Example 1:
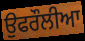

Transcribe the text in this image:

ਉਫਰੌਲੀਆ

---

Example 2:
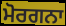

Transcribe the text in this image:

ਮੋਰਗਨਾ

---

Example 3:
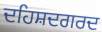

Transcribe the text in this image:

ਦਹਿਸ਼ਦਗਰਦ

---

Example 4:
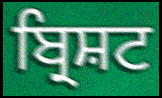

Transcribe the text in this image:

ਬ੍ਰਿਸ਼ਟ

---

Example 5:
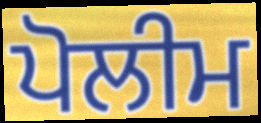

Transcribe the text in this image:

ਪੋਲੀਮ